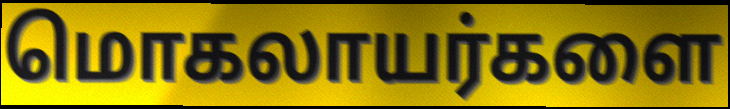
மொகலாயர்களை